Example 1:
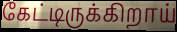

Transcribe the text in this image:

கேட்டிருக்கிறாய்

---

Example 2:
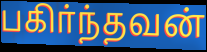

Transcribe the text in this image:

பகிர்ந்தவன்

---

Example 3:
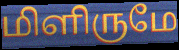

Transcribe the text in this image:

மிளிருமே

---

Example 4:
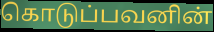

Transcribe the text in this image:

கொடுப்பவனின்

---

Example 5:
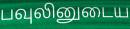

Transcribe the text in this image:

பவுலினுடைய